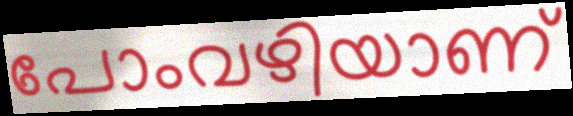
പോംവഴിയാണ്